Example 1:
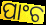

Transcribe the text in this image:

ପାଂଚ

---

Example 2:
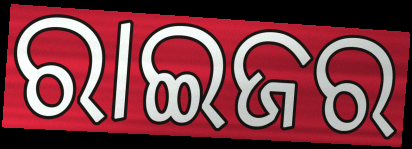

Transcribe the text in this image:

ରାଇଜର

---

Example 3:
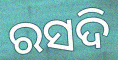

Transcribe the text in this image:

ରସଦି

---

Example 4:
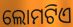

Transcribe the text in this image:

ଲୋମଟିଏ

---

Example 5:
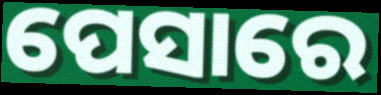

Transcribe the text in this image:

ପେସାରେ